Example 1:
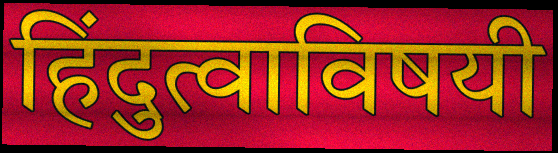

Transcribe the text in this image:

हिंदुत्वाविषयी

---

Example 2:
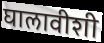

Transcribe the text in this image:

घालावीशी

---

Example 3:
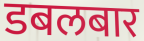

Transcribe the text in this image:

डबलबार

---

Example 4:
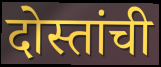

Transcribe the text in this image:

दोस्तांची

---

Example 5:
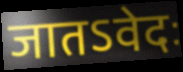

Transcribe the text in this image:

जातऽवेदः